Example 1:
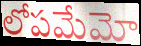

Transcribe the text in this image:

లోపమేమో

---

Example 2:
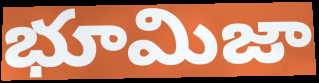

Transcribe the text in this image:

భూమిజా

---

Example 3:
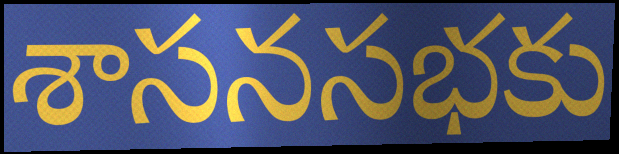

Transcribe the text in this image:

శాసనసభకు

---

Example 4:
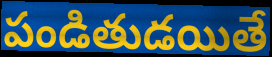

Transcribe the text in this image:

పండితుడయితే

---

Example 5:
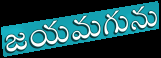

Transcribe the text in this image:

జయమగును